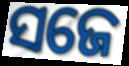
ସଜେ